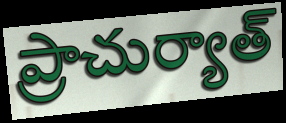
ప్రాచుర్యాత్